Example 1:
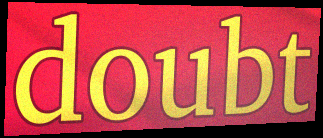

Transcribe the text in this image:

doubt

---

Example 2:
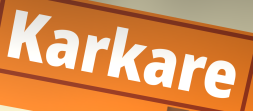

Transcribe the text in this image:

Karkare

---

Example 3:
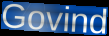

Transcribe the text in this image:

Govind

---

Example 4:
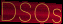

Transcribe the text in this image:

DSOs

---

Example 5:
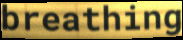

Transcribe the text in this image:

breathing